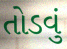
તોડવું